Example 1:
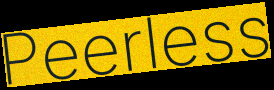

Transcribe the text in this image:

Peerless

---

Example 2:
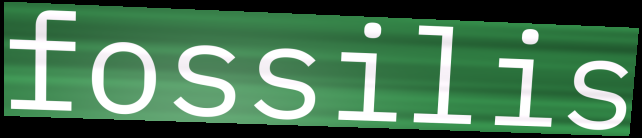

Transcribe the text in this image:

fossilis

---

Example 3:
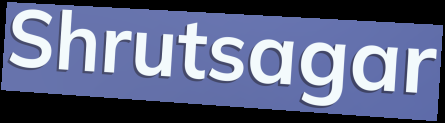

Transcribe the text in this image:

Shrutsagar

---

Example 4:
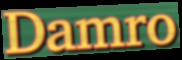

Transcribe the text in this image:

Damro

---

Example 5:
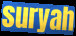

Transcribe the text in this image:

suryah